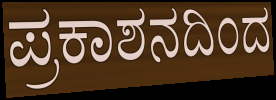
ಪ್ರಕಾಶನದಿಂದ